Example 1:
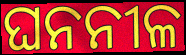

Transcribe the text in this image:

ଘନନୀଳ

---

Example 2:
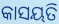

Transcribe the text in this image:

କାସୟତି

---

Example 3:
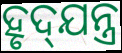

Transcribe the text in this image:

ହୃଦ୍‌ଯନ୍ତ୍ର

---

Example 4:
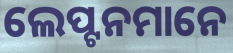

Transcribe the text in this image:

ଲେପ୍ଟନମାନେ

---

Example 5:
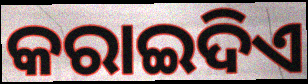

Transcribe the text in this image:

କରାଇଦିଏ